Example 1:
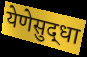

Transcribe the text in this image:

येणेसुद्धा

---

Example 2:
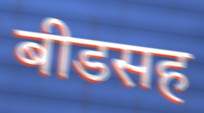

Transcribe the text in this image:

बीडसह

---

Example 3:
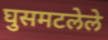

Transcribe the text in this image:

घुसमटलेले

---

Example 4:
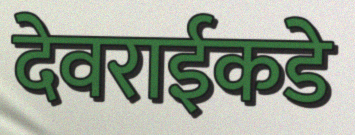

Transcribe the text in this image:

देवराईकडे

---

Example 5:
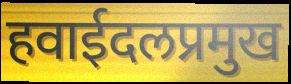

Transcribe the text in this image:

हवाईदलप्रमुख